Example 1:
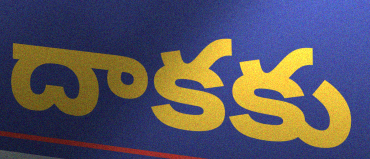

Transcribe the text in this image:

దాకకు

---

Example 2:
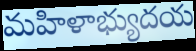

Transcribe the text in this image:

మహిళాభ్యుదయ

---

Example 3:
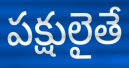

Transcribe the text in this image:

పక్షులైతే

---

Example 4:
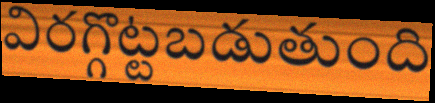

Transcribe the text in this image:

విరగ్గొట్టబడుతుంది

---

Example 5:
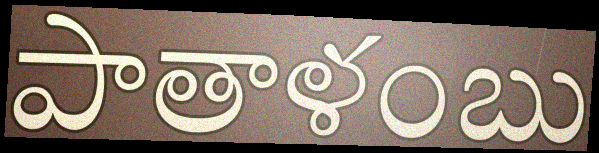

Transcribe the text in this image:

పాతాళంబు